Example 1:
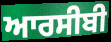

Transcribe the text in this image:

ਆਰਸੀਬੀ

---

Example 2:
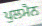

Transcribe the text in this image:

ਪੁਲਮੈਨ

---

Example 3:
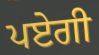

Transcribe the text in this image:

ਪਏਗੀ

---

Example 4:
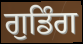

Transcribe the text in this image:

ਗੁਡਿੰਗ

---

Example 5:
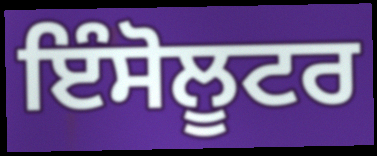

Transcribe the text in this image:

ਇੰਸੋਲੂਟਰ